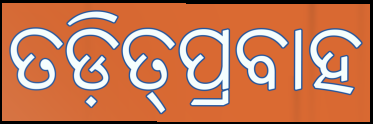
ତଡ଼ିତ୍‌ପ୍ରବାହ